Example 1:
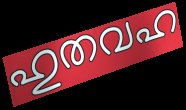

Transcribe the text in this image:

ഹുതവഹ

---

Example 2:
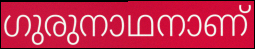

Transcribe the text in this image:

ഗുരുനാഥനാണ്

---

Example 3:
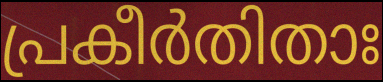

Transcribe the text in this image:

പ്രകീർതിതാഃ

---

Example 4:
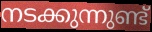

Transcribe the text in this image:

നടക്കുന്നുണ്ട്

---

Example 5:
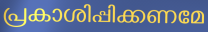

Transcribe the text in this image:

പ്രകാശിപ്പിക്കണമേ